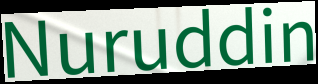
Nuruddin